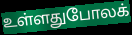
உள்ளதுபோலக்